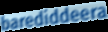
barediddeera